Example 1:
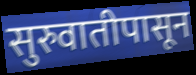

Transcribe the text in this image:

सुरुवातीपासून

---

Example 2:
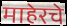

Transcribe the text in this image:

माहेरचे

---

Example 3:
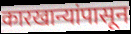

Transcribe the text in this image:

कारखान्यांपासून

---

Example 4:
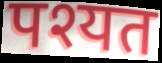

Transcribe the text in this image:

पश्यत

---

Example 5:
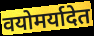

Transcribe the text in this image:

वयोमर्यादेत